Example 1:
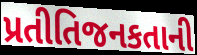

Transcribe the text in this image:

પ્રતીતિજનકતાની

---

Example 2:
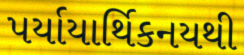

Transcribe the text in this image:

પર્યાયાર્થિકનયથી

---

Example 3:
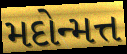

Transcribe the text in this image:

મદોન્મત્ત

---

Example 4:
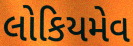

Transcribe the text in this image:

લોકિયમેવ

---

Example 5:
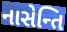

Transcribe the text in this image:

નાસેન્તિ